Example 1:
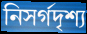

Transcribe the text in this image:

নিসর্গদৃশ্য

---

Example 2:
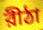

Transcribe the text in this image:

রীঠা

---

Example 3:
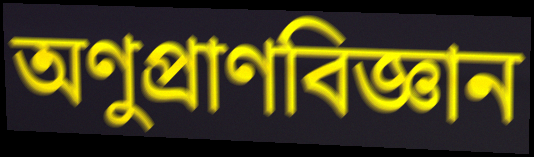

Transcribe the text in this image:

অণুপ্রাণবিজ্ঞান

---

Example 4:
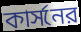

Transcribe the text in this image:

কার্সনের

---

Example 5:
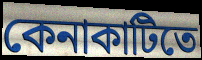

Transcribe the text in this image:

কেনাকাটিতে